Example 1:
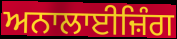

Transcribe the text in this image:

ਅਨਾਲਾਈਜ਼ਿੰਗ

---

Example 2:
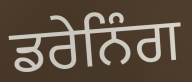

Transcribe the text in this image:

ਡਰੇਨਿੰਗ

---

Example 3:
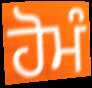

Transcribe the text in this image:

ਹੋਮੰ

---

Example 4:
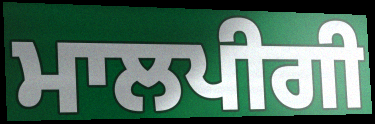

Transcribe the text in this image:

ਮਾਲਪੀਗੀ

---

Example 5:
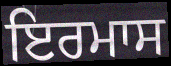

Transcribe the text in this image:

ਇਰਮਾਸ